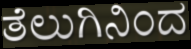
ತೆಲುಗಿನಿಂದ